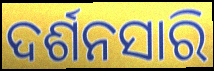
ଦର୍ଶନସାରି